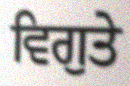
ਵਿਗੁਤੇ